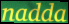
nadda